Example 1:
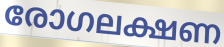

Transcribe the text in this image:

രോഗലക്ഷണ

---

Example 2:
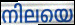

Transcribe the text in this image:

നിലയെ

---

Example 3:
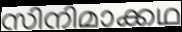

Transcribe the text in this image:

സിനിമാക്കഥ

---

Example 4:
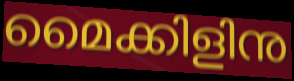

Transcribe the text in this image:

മൈക്കിളിനു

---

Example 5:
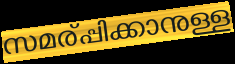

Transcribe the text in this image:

സമര്പ്പിക്കാനുള്ള